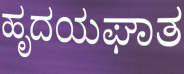
ಹೃದಯಘಾತ